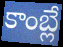
కాంబ్లే